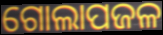
ଗୋଲାପଜଳ